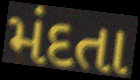
મંદતા